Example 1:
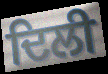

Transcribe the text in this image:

ਦਿਲੀ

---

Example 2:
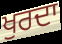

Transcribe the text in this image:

ਖੁਰਦਾ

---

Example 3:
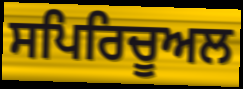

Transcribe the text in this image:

ਸਪਿਰਿਚੂਅਲ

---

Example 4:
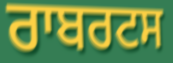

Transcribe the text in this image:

ਰਾਬਰਟਸ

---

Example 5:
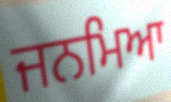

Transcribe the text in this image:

ਜਨਮਿਆ